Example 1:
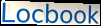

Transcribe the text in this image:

Locbook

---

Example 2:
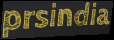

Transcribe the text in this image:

prsindia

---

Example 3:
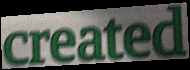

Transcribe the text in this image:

created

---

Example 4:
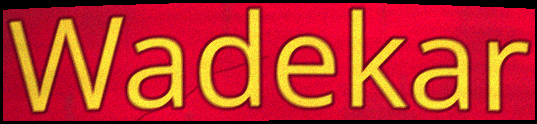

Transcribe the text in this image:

Wadekar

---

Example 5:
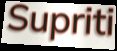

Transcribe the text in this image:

Supriti